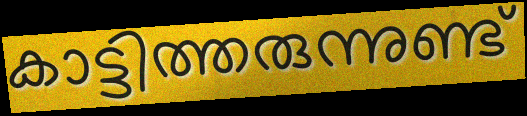
കാട്ടിത്തരുന്നുണ്ട്